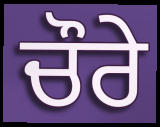
ਚੌਰੇ